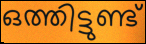
ഒത്തിട്ടുണ്ട്